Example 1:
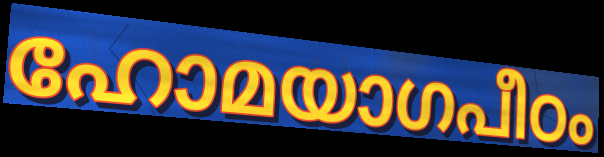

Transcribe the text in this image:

ഹോമയാഗപീഠം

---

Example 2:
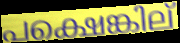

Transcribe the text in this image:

പക്ഷെങ്കില്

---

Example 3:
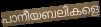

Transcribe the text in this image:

പാനീയബലികളെ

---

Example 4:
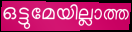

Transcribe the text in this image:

ഒട്ടുമേയില്ലാത്ത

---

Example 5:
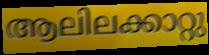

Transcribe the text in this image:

ആലിലക്കാറ്റു